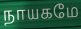
நாயகமே